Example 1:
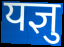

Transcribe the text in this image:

यज्ञु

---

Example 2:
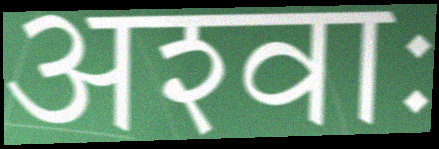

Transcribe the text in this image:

अश्वाः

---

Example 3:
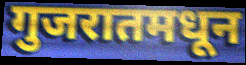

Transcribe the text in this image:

गुजरातमधून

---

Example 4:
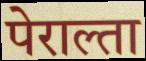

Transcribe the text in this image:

पेराल्ता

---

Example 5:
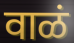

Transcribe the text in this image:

वाळं